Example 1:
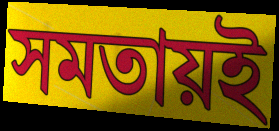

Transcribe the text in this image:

সমতায়ই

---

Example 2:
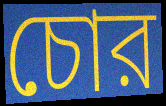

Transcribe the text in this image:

চোর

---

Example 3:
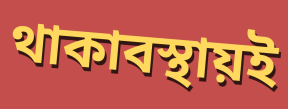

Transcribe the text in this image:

থাকাবস্থায়ই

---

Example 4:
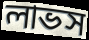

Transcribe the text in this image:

লাভস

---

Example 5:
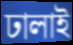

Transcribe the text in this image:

ঢালাই